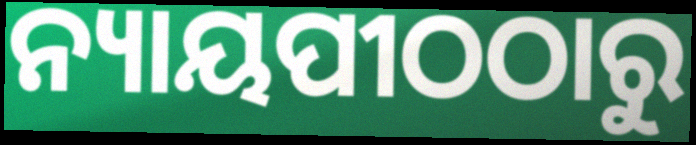
ନ୍ୟାୟପୀଠଠାରୁ